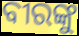
ବୀରଙ୍କୁ